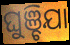
ଘୁଞ୍ଚିଯା